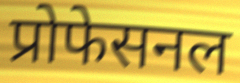
प्रोफेसनल